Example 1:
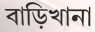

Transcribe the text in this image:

বাড়িখানা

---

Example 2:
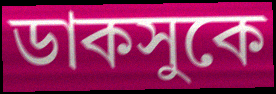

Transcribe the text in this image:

ডাকসুকে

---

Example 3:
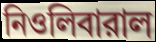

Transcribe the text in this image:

নিওলিবারাল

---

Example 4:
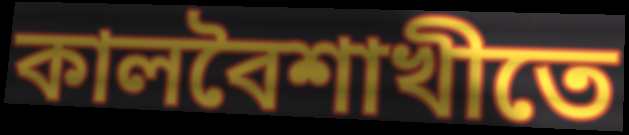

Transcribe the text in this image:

কালবৈশাখীতে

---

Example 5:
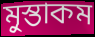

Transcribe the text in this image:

মুস্তাকম